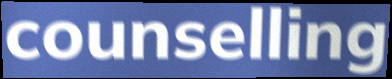
counselling